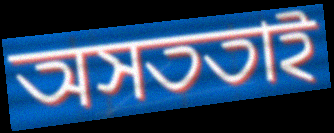
অসততাই